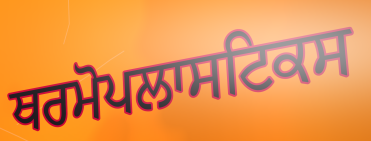
ਥਰਮੋਪਲਾਸਟਿਕਸ